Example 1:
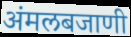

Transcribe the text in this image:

अंमलबजाणी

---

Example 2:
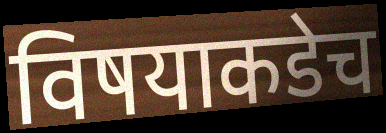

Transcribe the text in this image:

विषयाकडेच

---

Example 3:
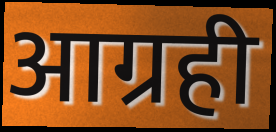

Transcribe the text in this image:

आग्रही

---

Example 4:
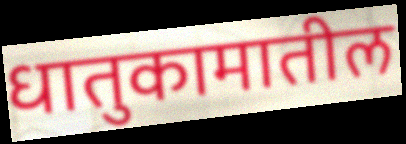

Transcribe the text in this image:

धातुकामातील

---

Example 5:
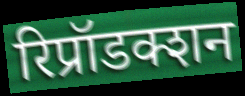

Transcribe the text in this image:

रिप्रॉडक्शन